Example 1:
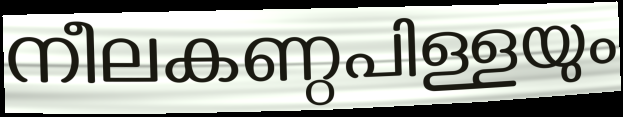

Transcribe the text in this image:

നീലകണ്ഠപിള്ളയും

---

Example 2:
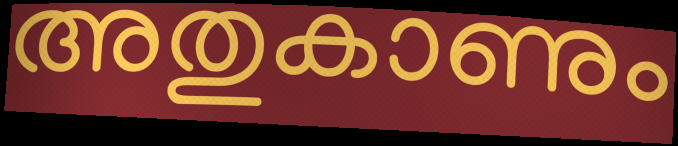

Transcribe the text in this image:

അതുകാണും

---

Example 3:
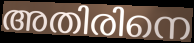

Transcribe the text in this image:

അതിരിനെ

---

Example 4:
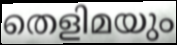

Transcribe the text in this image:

തെളിമയും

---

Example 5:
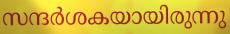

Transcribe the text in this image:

സന്ദർശകയായിരുന്നു